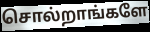
சொல்றாங்களே